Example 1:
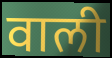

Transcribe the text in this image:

वाली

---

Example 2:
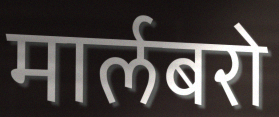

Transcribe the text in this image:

मार्लबरो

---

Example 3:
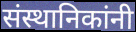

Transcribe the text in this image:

संस्थानिकांनी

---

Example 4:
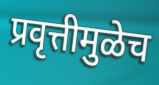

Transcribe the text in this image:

प्रवृत्तीमुळेच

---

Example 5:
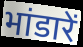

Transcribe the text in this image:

भांडारें